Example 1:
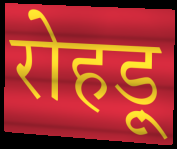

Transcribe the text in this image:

रोहड़ू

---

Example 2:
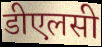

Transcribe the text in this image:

डीएलसी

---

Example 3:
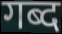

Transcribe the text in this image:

गब्द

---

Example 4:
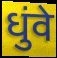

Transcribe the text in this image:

धुंवे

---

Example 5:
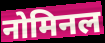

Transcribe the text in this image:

नोमिनल